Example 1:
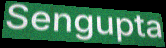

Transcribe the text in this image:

Sengupta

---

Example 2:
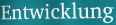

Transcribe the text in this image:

Entwicklung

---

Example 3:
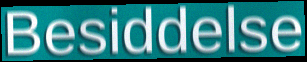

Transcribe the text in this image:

Besiddelse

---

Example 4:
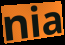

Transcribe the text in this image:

nia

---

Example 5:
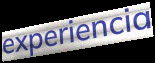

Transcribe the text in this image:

experiencia